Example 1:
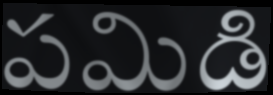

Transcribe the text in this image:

పమిడి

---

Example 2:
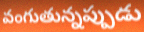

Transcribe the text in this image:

వంగుతున్నప్పుడు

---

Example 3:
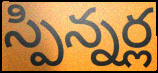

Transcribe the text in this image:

స్పిన్నర్ల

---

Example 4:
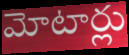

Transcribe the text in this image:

మోటార్లు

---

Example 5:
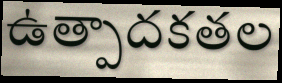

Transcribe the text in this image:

ఉత్పాదకతల